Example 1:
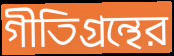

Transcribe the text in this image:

গীতিগ্রন্থের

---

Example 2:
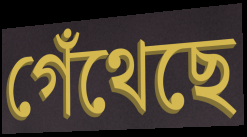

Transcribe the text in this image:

গেঁথেছে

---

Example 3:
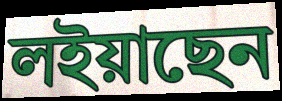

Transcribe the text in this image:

লইয়াছেন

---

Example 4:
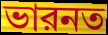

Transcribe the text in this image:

ভারনত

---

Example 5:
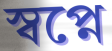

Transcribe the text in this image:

স্বপ্নে